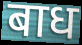
बाध